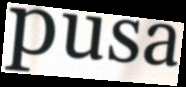
pusa